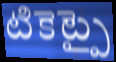
టికెట్పై